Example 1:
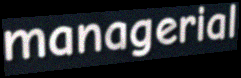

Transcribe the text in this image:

managerial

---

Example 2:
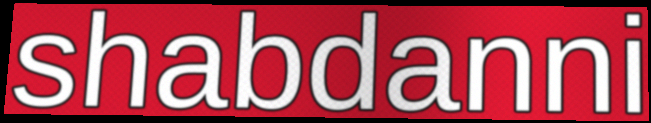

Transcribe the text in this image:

shabdanni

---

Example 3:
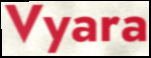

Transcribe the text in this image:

Vyara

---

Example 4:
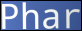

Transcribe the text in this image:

Phar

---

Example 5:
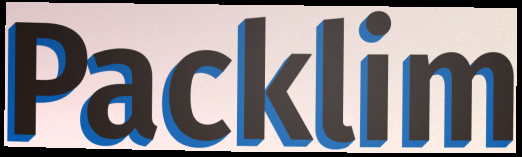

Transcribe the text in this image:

Packlim